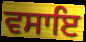
ਵਸਾਇ